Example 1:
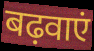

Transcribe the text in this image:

बढ़वाएं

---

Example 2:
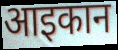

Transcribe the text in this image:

आइकान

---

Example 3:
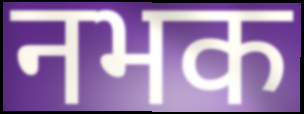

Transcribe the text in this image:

नभक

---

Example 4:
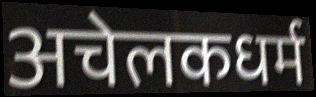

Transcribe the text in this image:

अचेलकधर्म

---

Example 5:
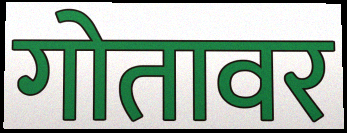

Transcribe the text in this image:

गोतावर